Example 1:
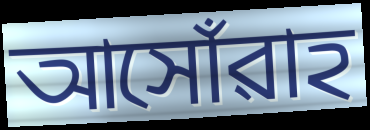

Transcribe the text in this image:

আসোঁৱাহ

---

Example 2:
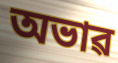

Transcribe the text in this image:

অভাৱ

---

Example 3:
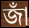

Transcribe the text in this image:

জাঁ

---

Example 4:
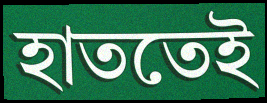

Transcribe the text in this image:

হাততেই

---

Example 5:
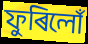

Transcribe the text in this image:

ফুৰিলোঁ